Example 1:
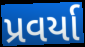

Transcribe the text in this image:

પ્રવર્યા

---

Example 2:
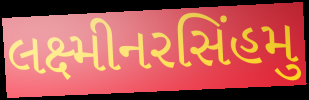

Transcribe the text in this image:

લક્ષ્મીનરસિંહમુ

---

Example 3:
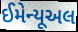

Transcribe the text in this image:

ઈમેન્યૂઅલ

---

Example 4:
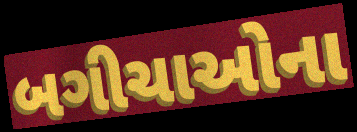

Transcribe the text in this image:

બગીચાઓના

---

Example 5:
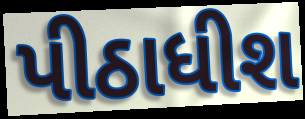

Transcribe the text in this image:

પીઠાધીશ